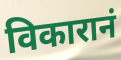
विकारानं